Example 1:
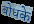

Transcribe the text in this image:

बोधके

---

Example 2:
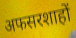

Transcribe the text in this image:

अफसरशाहों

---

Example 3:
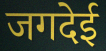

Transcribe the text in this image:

जगदेई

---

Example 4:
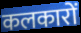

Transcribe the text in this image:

कलकारों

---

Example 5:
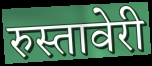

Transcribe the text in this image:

रुस्तावेरी